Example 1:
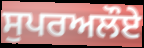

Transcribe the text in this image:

ਸੁਪਰਅਲੌਏ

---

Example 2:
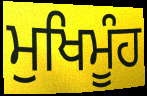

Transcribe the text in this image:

ਮੁਖਿਮੂੰਹ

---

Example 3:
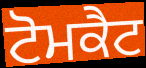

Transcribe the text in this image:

ਟੋਮਕੈਟ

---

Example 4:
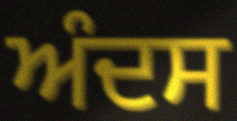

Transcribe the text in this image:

ਅੰਦਸ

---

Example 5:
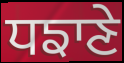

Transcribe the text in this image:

ਧਙਾਣੇ